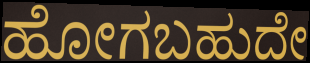
ಹೋಗಬಹುದೇ